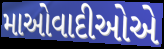
માઓવાદીઓએ